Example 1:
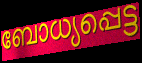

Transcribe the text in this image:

ബോധ്യപ്പെട്ട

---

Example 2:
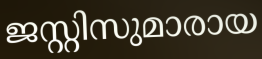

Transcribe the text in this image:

ജസ്റ്റിസുമാരായ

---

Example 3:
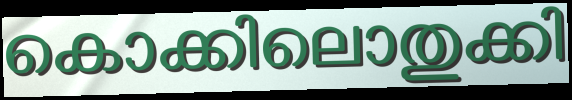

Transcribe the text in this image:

കൊക്കിലൊതുക്കി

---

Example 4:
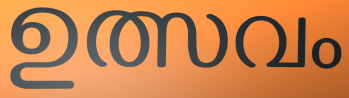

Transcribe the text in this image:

ഉത്സവം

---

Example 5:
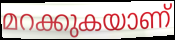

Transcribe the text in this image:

മറക്കുകയാണ്